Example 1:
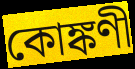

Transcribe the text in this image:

কোঙ্কণী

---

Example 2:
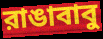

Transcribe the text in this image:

রাঙাবাবু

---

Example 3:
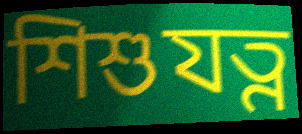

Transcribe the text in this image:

শিশুযত্ন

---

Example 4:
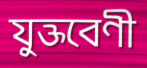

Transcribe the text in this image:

যুক্তবেণী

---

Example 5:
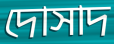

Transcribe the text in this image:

দোসাদ